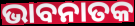
ଭାବନାତକ